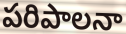
పరిపాలనా